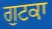
ਗੁਟਕਾ